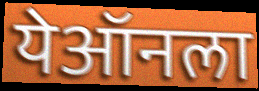
येऑनला